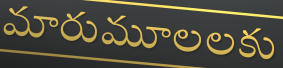
మారుమూలలకు